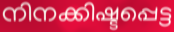
നിനക്കിഷ്ടപ്പെട്ട